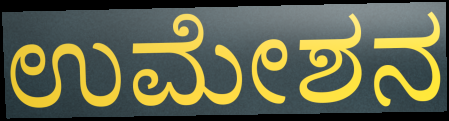
ಉಮೇಶನ